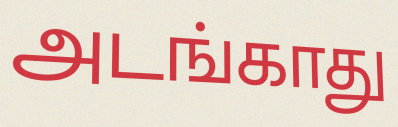
அடங்காது